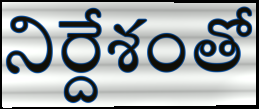
నిర్దేశంతో